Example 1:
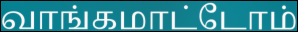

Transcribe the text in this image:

வாங்கமாட்டோம்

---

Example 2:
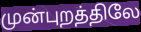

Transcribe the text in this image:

முன்புறத்திலே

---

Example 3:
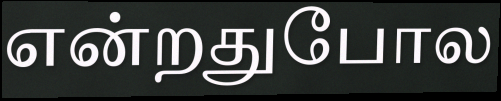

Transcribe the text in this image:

என்றதுபோல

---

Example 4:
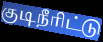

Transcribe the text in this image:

குடிநீரிட்டு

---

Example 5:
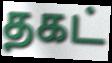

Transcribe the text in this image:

தகட்